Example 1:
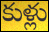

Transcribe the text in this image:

కుళ్లు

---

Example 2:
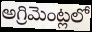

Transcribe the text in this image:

అగ్రిమెంట్లలో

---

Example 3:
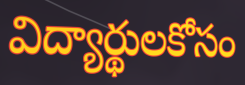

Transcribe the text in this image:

విద్యార్థులకోసం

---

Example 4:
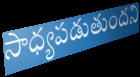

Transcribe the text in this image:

సాధ్యపడుతుందని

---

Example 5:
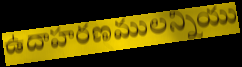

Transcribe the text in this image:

ఉదాహరణములన్నియు